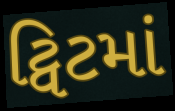
ટ્વિટમાં